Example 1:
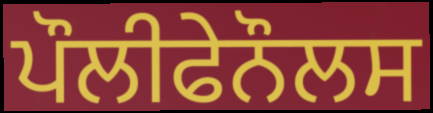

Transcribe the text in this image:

ਪੌਲੀਫੇਨੌਲਸ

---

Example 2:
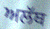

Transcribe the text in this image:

ਅਲੱਥ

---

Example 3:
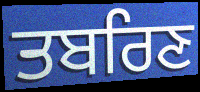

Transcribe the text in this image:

ਤਬਰਿਣ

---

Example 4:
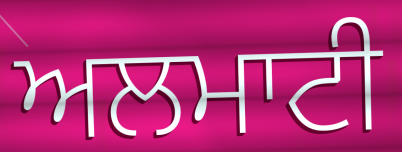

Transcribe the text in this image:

ਅਲਮਾਟੀ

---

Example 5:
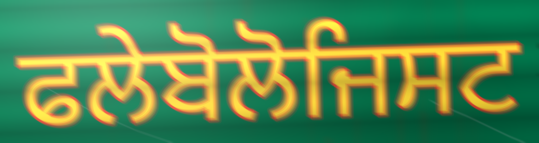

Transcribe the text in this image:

ਫਲੇਬੋਲੋਜਿਸਟ